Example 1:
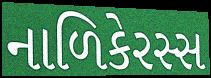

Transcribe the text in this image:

નાળિકેરસ્સ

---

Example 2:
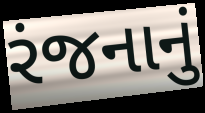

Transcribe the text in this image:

રંજનાનું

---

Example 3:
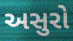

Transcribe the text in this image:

અસુરો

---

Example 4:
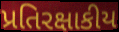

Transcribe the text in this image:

પ્રતિરક્ષાકીય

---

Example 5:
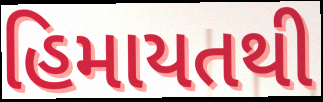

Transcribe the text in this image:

હિમાયતથી